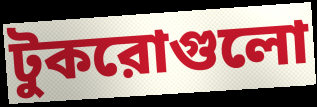
টুকরোগুলো